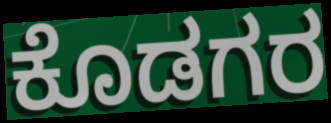
ಕೊಡಗರ